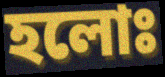
হলোঃ